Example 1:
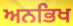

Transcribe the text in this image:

ਅਨਭਿਖ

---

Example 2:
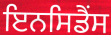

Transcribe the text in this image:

ਇਨਸਿਡੈਂਸ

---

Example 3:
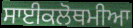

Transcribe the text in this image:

ਸਾਈਕਲੋਥਮੀਆ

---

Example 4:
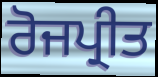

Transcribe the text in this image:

ਰੋਜਪ੍ਰੀਤ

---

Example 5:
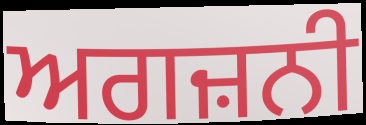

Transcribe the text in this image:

ਅਗਜ਼ਨੀ